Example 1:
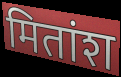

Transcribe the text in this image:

मितांश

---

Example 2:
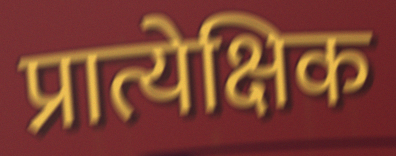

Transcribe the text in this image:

प्रात्येक्षिक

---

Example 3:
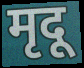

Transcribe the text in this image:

मृदू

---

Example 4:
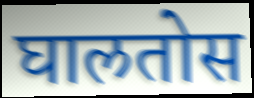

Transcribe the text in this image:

घालतोस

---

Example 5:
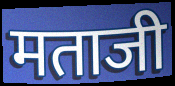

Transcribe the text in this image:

मताजी